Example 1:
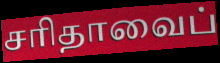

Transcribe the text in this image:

சரிதாவைப்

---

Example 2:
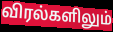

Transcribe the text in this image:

விரல்களிலும்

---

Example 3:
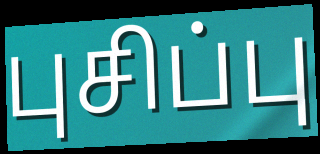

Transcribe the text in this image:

புசிப்பு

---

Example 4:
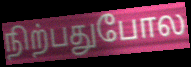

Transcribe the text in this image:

நிற்பதுபோல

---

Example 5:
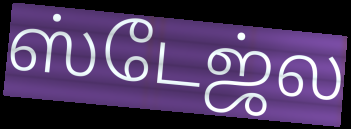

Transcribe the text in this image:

ஸ்டேஜ்ல